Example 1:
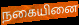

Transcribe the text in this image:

நகையினை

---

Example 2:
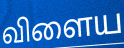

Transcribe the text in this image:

விளைய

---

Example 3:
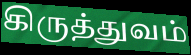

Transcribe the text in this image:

கிருத்துவம்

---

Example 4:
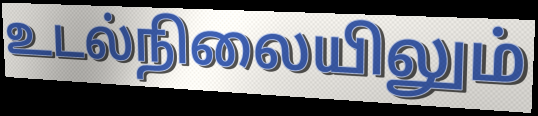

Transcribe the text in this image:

உடல்நிலையிலும்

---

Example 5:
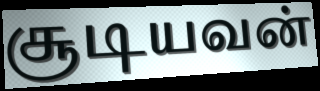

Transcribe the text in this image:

சூடியவன்